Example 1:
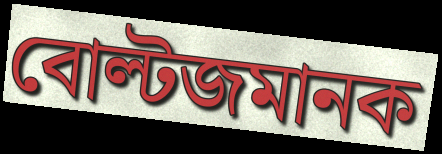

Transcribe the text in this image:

বোল্টজমানক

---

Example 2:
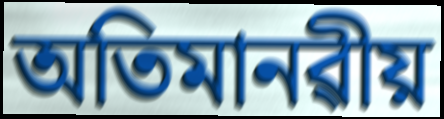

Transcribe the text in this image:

অতিমানৱীয়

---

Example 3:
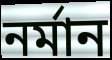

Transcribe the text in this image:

নৰ্মান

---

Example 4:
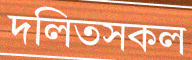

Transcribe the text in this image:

দলিতসকল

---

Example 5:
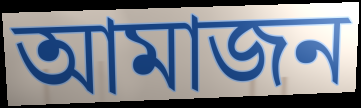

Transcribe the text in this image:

আমাজন